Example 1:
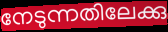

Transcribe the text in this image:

നേടുന്നതിലേക്കു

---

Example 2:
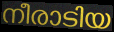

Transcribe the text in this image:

നീരാടിയ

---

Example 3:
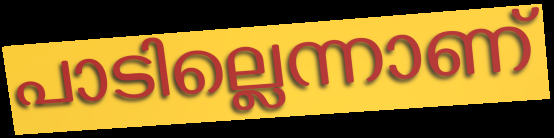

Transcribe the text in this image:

പാടില്ലെന്നാണ്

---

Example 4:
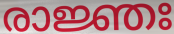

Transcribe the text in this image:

രാജ്ഞഃ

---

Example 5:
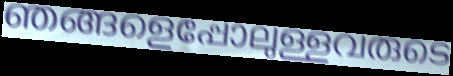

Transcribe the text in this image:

ഞങ്ങളെപ്പോലുള്ളവരുടെ